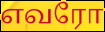
எவரோ